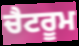
ਚੈਟਰੂਮ